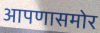
आपणासमोर